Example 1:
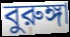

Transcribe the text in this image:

বুরুঙ্গা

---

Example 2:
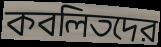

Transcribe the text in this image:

কবলিতদের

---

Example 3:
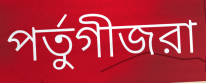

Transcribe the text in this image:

পর্তুগীজরা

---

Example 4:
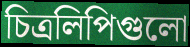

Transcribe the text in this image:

চিত্রলিপিগুলো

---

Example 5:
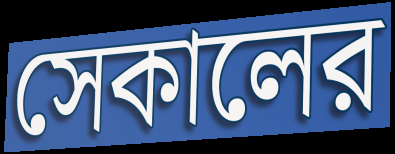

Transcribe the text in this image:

সেকালের